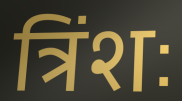
त्रिंशः